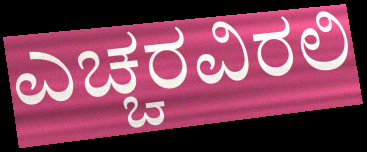
ಎಚ್ಚರವಿರಲಿ